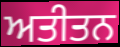
ਅਤੀਤਨ